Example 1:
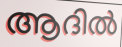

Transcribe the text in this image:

ആദിൽ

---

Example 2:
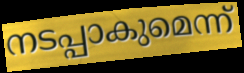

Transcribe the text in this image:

നടപ്പാകുമെന്ന്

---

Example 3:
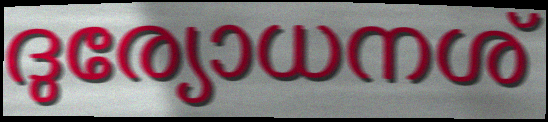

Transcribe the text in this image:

ദുര്യോധനശ്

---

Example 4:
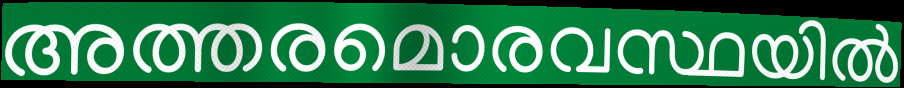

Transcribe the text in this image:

അത്തരമൊരവസ്ഥയിൽ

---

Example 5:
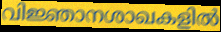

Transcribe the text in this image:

വിജ്ഞാനശാഖകളിൽ